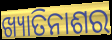
ଖ୍ୟାତିନାଶର